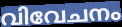
വിവേചനം